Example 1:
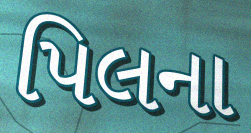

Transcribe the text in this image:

પિલના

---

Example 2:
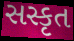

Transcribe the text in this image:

સસ્કૃત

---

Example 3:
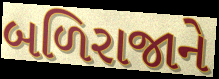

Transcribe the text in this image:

બળિરાજાને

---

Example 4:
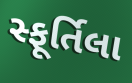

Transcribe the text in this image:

સ્ફૂર્તિલા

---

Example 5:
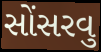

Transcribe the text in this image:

સોંસરવુ